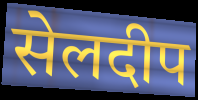
सेलदीप